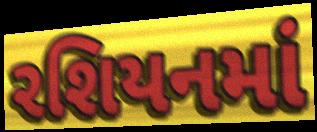
રશિયનમાં